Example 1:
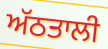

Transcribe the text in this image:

ਅੱਠਤਾਲੀ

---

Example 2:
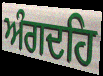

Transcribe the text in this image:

ਅੰਗਦਹਿ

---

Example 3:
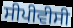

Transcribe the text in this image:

ਸੀਪੀਵੀਸੀ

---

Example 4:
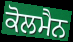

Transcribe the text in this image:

ਕੋਲਮੈਨ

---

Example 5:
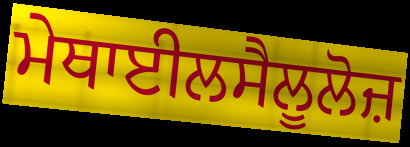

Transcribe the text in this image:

ਮੇਥਾਈਲਸੈਲੂਲੋਜ਼